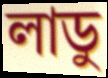
লাডু